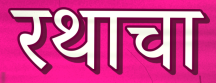
रथाचा